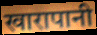
खारापानी